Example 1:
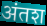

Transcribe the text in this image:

अंतश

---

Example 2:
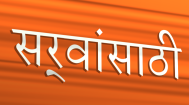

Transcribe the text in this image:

सर्वांसाठी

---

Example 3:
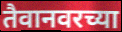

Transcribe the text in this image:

तैवानवरच्या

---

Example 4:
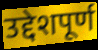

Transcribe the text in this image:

उद्देशपूर्ण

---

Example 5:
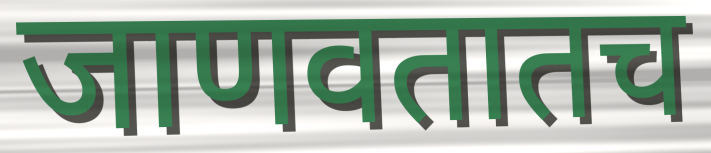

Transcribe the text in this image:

जाणवतातच